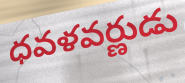
ధవళవర్ణుడు